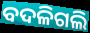
ବଦଳିଗଲି